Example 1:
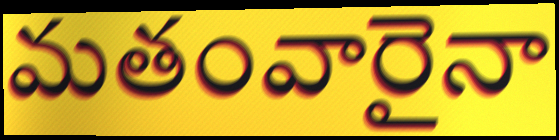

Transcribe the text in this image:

మతంవారైనా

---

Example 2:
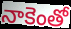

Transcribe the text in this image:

నాకెంతో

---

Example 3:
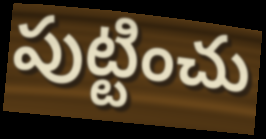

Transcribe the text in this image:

పుట్టించు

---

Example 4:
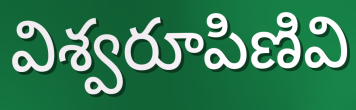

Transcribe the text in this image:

విశ్వరూపిణివి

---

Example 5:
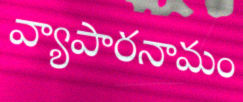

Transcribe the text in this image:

వ్యాపారనామం